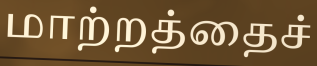
மாற்றத்தைச்